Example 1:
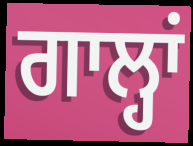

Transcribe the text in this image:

ਗਾਲ੍ਹਾਂ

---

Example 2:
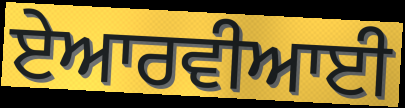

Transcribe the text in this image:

ਏਆਰਵੀਆਈ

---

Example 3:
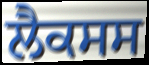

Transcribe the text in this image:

ਲੈਕਸਸ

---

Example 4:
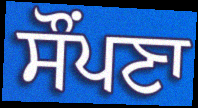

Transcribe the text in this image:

ਸੌਂਪਣਾ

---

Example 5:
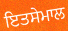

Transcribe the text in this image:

ਇਤਸੇਮਾਲ